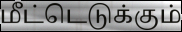
மீட்டெடுக்கும்